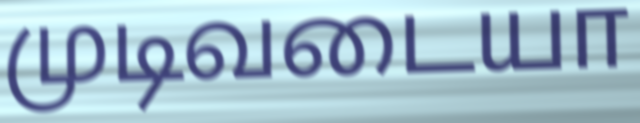
முடிவடையா